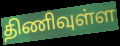
திணிவுள்ள